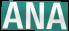
ANA